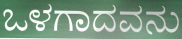
ಒಳಗಾದವನು